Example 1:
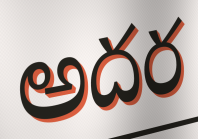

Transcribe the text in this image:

అదర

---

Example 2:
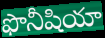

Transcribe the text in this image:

ఫొనీషియా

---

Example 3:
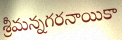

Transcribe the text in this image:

శ్రీమన్నగరనాయికా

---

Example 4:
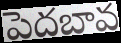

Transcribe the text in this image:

పెదబావ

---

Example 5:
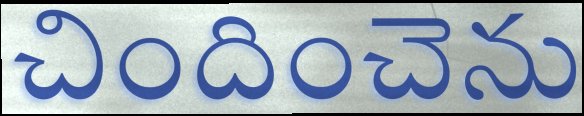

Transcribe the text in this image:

చిందించెను